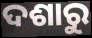
ଦଶାରୁ